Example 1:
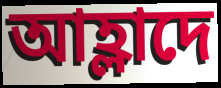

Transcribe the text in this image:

আহ্লাদে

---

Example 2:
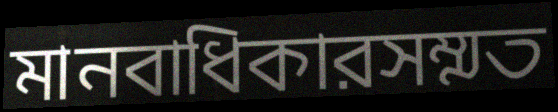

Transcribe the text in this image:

মানবাধিকারসম্মত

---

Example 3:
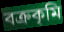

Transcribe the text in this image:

বক্রকৃমি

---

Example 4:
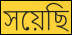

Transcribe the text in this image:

সয়েছি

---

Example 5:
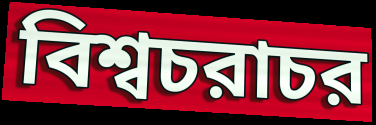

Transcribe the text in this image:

বিশ্বচরাচর